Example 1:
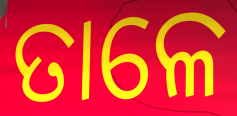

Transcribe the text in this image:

ତାଳେ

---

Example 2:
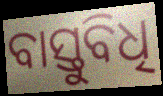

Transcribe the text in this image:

ବାସ୍ତୁବିଧି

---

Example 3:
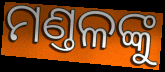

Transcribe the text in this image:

ମଣ୍ତଳଙ୍କୁ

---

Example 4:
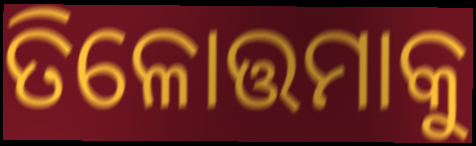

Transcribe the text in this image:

ତିଳୋତ୍ତମାକୁ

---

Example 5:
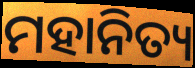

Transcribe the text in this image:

ମହାନିତ୍ୟ